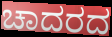
ಚಾದರದ